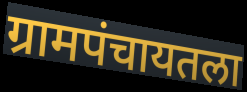
ग्रामपंचायतला